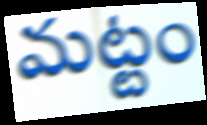
మట్టం